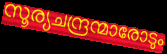
സൂര്യചന്ദ്രന്മാരോടും